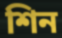
শিন